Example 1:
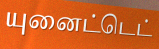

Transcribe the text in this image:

யுனைட்டெட்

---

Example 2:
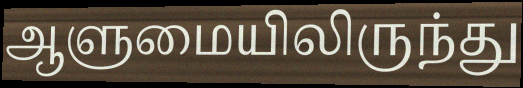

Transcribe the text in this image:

ஆளுமையிலிருந்து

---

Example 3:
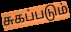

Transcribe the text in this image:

சுகப்படும்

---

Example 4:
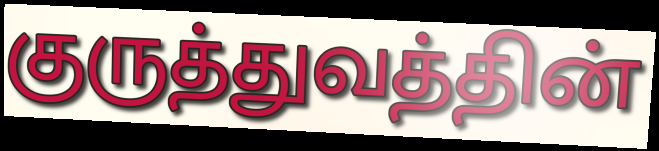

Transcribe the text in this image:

குருத்துவத்தின்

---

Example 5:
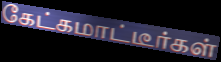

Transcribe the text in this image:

கேட்கமாட்டீர்கள்